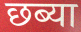
छब्या